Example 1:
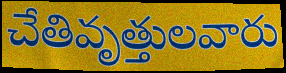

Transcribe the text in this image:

చేతివృత్తులవారు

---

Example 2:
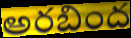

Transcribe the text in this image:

అరబింద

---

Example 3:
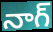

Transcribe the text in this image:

నాగ్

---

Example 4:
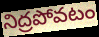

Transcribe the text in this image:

నిద్రపోవటం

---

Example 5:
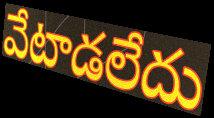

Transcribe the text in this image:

వేటాడలేదు